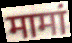
मामां